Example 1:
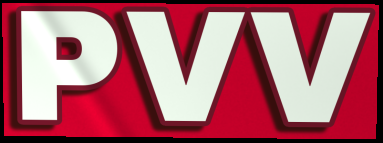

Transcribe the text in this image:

PVV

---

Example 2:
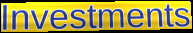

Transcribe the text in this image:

Investments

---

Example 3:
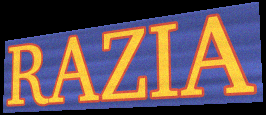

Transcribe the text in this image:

RAZIA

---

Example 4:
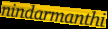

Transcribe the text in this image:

nindarmanthi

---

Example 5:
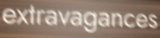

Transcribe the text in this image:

extravagances